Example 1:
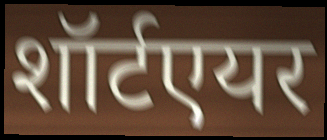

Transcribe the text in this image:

शॉर्टएयर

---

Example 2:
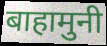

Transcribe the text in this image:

बाहामुनी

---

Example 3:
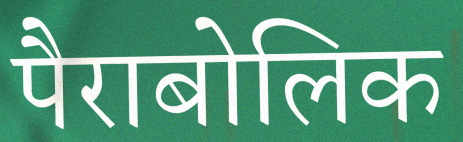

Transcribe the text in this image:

पैराबोलिक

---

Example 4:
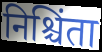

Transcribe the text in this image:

निश्चिंता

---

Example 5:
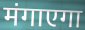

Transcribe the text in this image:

मंगाएगा